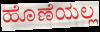
ಹೊಣೆಯಲ್ಲ